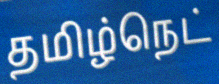
தமிழ்நெட்